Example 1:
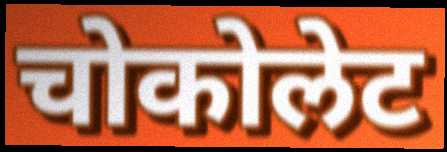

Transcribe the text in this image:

चोकोलेट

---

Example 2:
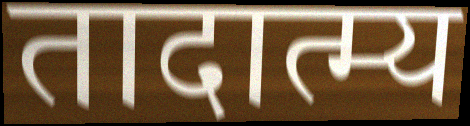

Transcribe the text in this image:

तादात्म्य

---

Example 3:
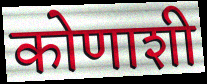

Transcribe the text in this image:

कोणाशी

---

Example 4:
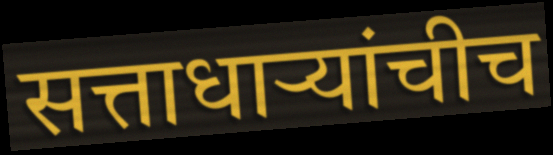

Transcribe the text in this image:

सत्ताधाऱ्यांचीच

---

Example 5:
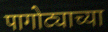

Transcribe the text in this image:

पागोट्याच्या